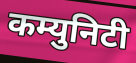
कम्युनिटी